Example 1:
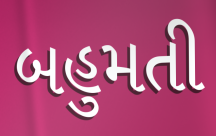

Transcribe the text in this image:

બહુમતી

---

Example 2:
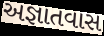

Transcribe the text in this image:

અજ્ઞાતવાસ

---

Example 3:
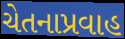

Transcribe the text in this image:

ચેતનાપ્રવાહ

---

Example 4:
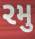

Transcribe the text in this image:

રમુ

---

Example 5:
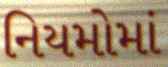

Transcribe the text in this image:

નિયમોમાં